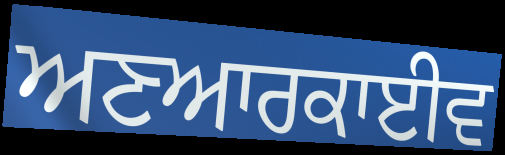
ਅਣਆਰਕਾਈਵ